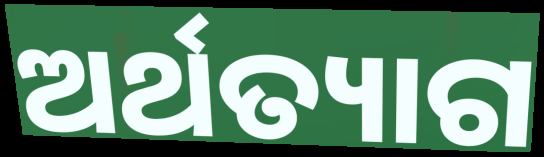
ଅର୍ଥତ୍ୟାଗ